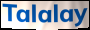
Talalay